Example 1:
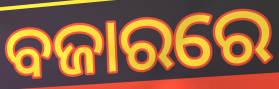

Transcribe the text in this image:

ବଜାରରେ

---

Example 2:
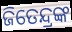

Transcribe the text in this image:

ଜିତେନ୍ଦ୍ରଙ୍କ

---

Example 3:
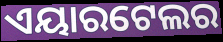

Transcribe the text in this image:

ଏୟାରଟେଲର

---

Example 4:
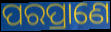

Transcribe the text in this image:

ପରପ୍ରାଣେ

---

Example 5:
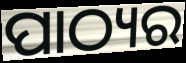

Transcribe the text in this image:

ପାଠ୍ୟର